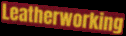
Leatherworking